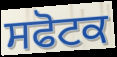
ਸਫੋਟਕ